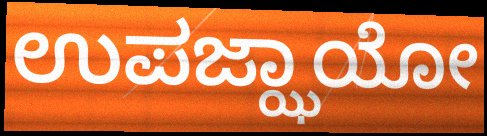
ಉಪಜ್ಝಾಯೋ